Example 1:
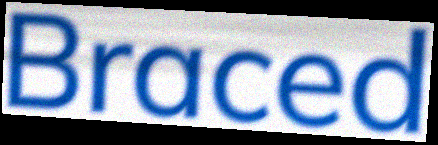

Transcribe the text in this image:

Braced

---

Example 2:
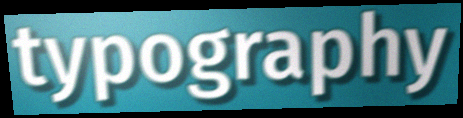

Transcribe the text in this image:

typography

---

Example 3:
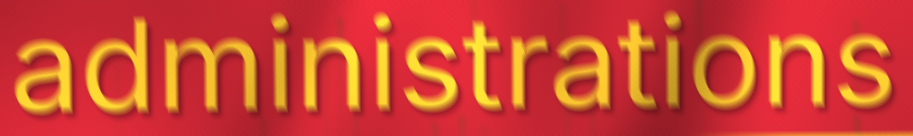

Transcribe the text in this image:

administrations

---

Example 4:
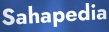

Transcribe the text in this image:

Sahapedia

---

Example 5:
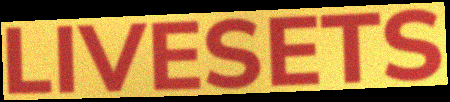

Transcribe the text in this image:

LIVESETS